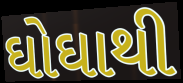
ઘોઘાથી